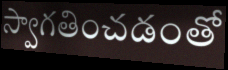
స్వాగతించడంతో